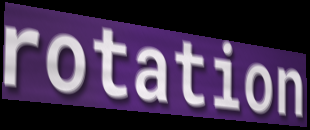
rotation